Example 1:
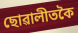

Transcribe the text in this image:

ছোৱালীতকৈ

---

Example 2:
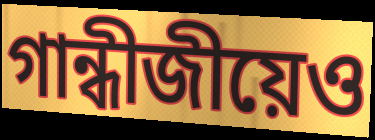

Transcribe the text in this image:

গান্ধীজীয়েও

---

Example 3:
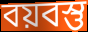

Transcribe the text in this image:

বয়বস্তু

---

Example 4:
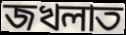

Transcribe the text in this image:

জখলাত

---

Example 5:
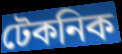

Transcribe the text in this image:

টেকনিক